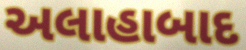
અલાહાબાદ